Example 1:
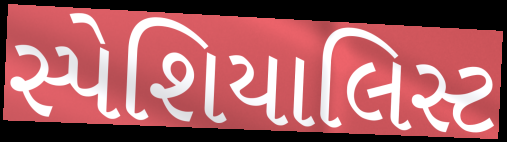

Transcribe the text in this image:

સ્પેશિયાલિસ્ટ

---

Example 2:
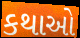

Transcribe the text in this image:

કથાઓ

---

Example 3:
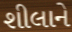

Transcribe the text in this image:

શીલાને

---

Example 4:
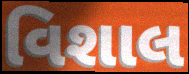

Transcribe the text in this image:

વિશાલ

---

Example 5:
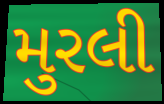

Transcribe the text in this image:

મુરલી